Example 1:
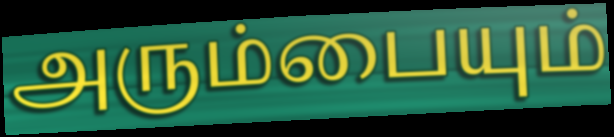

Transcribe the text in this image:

அரும்பையும்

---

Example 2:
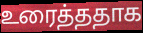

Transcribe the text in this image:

உரைத்ததாக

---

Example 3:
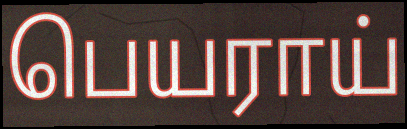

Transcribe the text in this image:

பெயராய்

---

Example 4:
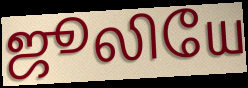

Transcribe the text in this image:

ஜூலியே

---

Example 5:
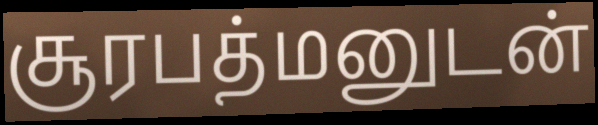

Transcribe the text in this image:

சூரபத்மனுடன்